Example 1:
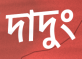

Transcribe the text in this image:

দাদুং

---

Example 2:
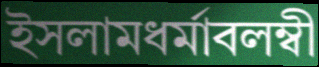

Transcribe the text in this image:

ইসলামধর্মাবলম্বী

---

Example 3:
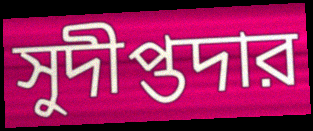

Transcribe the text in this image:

সুদীপ্তদার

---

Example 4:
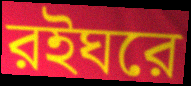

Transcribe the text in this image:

রইঘরে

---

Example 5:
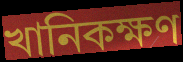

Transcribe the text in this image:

খানিকক্ষণ